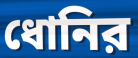
ধোনির